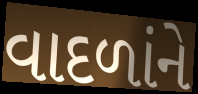
વાદળાંને